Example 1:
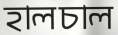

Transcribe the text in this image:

হালচাল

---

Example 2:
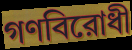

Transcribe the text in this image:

গণবিরোধী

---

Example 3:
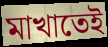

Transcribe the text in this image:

মাখাতেই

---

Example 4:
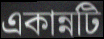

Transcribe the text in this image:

একান্নটি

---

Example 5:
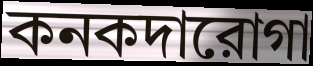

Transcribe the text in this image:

কনকদারোগা